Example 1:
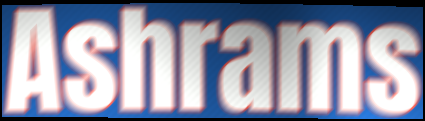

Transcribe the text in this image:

Ashrams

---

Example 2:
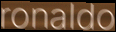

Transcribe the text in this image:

ronaldo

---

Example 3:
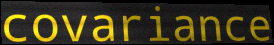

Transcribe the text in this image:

covariance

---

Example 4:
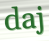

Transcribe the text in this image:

daj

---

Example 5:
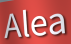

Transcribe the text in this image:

Alea